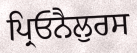
ਪ੍ਰਿਓਨੈਲੁਰਸ